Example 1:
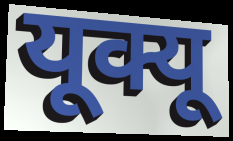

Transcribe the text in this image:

यूक्यू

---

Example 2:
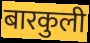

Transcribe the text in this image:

बारकुली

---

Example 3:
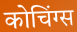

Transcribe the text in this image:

कोचिंग्स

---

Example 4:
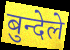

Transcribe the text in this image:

बुन्देले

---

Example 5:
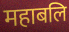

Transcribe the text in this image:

महाबलि